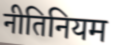
नीतिनियम